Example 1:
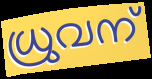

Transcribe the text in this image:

ധ്രുവന്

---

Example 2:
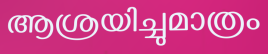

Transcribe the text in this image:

ആശ്രയിച്ചുമാത്രം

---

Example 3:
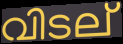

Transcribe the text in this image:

വിടല്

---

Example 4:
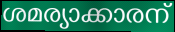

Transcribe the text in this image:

ശമര്യാക്കാരന്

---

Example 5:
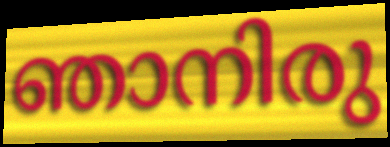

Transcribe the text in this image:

ഞാനിരു